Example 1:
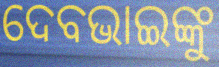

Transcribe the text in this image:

ଦେବଭାଇଙ୍କୁ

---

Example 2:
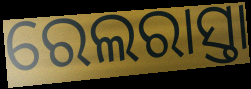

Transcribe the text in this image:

ରେଲରାସ୍ତା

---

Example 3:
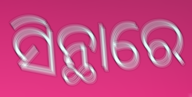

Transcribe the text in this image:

ସିନ୍ଥାରେ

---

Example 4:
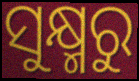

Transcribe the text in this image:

ସୁକ୍ଷ୍ମରୁ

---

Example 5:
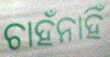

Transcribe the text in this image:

ଚାହଁନାହିଁ